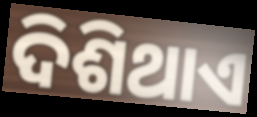
ଦିଶିଥାଏ